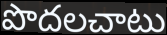
పొదలచాటు